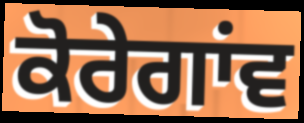
ਕੋਰੇਗਾਂਵ